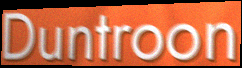
Duntroon